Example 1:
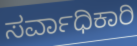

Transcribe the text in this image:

ಸರ್ವಾಧಿಕಾರಿ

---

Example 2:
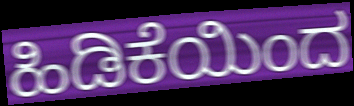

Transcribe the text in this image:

ಹಿಡಿಕೆಯಿಂದ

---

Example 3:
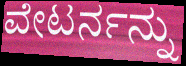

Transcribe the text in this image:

ವೇಟರ್ನನ್ನು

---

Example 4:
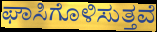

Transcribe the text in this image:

ಘಾಸಿಗೊಳಿಸುತ್ತವೆ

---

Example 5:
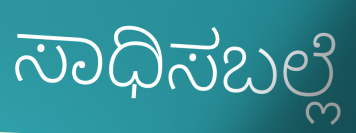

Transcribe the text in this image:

ಸಾಧಿಸಬಲ್ಲೆ